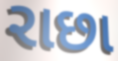
રાછા